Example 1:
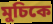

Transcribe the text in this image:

মুচিকে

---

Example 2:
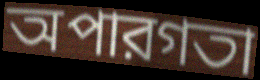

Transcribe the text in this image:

অপারগতা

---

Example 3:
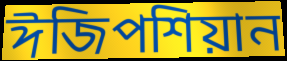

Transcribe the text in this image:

ঈজিপশিয়ান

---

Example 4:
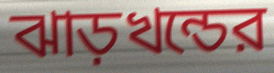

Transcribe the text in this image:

ঝাড়খন্ডের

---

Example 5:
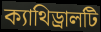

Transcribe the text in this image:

ক্যাথিড্রালটি